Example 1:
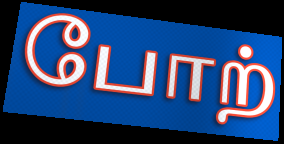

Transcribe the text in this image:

போற்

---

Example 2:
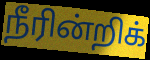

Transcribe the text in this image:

நீரின்றிக்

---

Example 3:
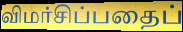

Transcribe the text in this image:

விமர்சிப்பதைப்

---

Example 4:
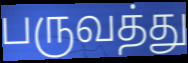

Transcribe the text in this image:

பருவத்து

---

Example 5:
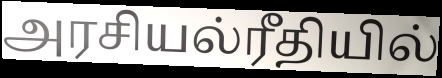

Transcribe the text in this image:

அரசியல்ரீதியில்